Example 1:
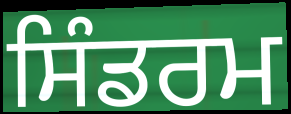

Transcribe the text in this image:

ਸਿੰਡਰਮ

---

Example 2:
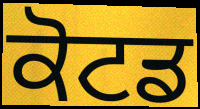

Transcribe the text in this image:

ਕੋਟਡ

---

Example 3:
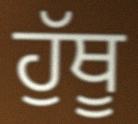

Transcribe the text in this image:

ਹੁੱਥੂ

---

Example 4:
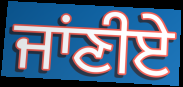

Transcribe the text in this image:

ਜਾਂਣੀਏ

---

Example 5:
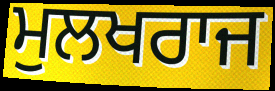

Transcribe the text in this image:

ਮੁਲਖਰਾਜ